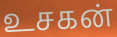
உசகன்